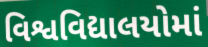
વિશ્વવિદ્યાલયોમાં